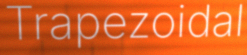
Trapezoidal